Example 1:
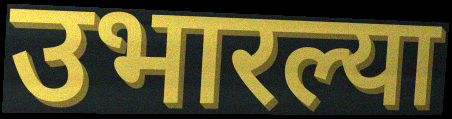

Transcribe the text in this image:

उभारल्या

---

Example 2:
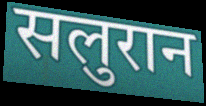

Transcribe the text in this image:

सलुरान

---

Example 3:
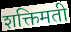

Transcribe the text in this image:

शक्तिमती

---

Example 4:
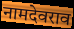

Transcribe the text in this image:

नामदेवराव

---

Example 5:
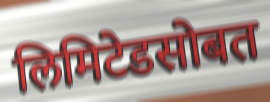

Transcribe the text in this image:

लिमिटेडसोबत